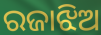
ରଜାଝିଅ